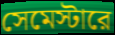
সেমেস্টারে